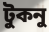
টুকনু